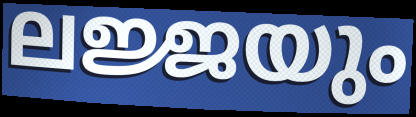
ലജ്ജയും